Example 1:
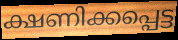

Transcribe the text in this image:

ക്ഷണിക്കപ്പെട്ട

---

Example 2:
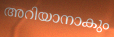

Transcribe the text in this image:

അറിയാനാകും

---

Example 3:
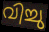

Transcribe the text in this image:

വിച്ചു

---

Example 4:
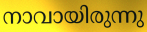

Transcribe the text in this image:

നാവായിരുന്നു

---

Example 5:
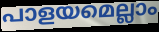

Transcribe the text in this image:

പാളയമെല്ലാം